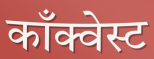
काँक्वेस्ट